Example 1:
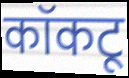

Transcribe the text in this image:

कॉकटू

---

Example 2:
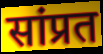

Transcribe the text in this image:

सांप्रत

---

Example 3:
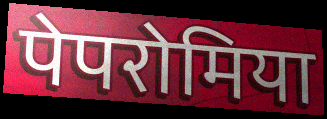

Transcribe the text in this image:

पेपरोमिया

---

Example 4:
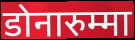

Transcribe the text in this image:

डोनारुम्मा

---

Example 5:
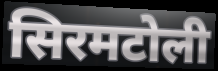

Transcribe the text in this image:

सिरमटोली